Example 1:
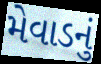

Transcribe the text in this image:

મેવાડનું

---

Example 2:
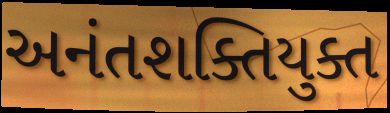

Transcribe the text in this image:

અનંતશક્તિયુક્ત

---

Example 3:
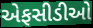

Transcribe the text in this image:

એફસીડીઓ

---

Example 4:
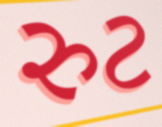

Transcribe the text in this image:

રુટ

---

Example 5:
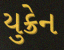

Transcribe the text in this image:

યુક્રેન